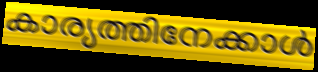
കാര്യത്തിനേക്കാൾ